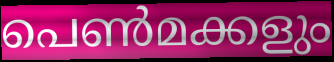
പെൺമക്കളും